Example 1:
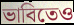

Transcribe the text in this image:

ভাবিতেও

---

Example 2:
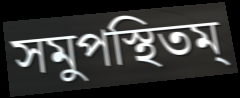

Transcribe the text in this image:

সমুপস্থিতম্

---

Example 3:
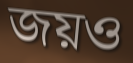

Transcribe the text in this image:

জয়ও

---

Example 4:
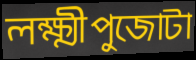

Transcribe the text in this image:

লক্ষ্মীপুজোটা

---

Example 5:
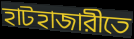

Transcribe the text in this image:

হাটহাজারীতে